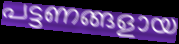
പട്ടണങ്ങളായ